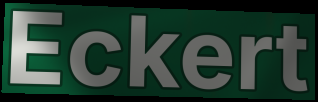
Eckert